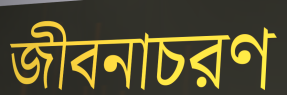
জীবনাচরণ